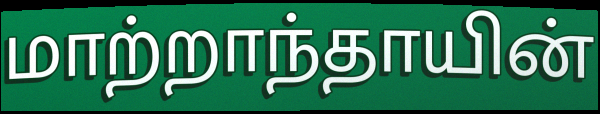
மாற்றாந்தாயின்